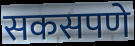
सकसपणे